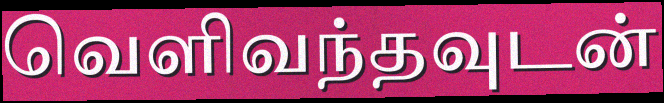
வெளிவந்தவுடன்